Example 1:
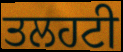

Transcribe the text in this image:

ਤਲਹਟੀ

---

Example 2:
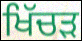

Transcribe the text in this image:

ਖਿੱਚੜ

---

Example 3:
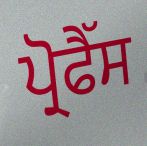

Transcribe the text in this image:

ਪ੍ਰੋਫੈੱਸ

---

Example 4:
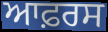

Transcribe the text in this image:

ਆਫ਼ਰਸ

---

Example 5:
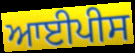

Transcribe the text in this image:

ਆਈਪੀਸ